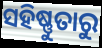
ସହିଷ୍ଣୁତାରୁ